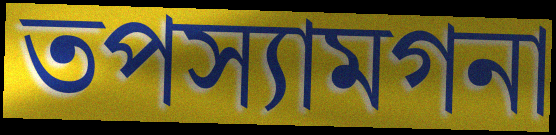
তপস্যামগনা